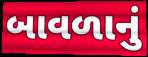
બાવળાનું